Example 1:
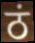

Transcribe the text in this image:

ठं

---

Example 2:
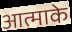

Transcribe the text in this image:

आत्माके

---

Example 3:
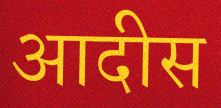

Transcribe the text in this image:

आदीस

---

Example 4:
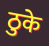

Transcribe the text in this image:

ठुके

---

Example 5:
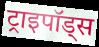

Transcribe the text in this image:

ट्राइपॉड्स